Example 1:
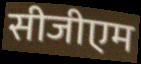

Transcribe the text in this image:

सीजीएम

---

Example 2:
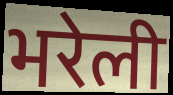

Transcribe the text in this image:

भरेली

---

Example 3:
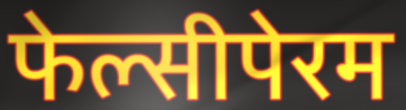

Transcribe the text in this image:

फेल्सीपेरम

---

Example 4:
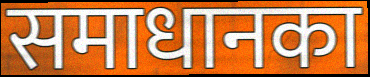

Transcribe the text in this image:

समाधानका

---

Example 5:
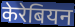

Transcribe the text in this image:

केरेबियन